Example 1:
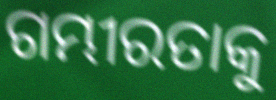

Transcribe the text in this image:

ଗମ୍ଭୀରତାକୁ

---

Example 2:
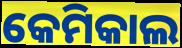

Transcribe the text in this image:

କେମିକାଲ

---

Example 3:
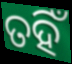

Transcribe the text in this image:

ତହିଁ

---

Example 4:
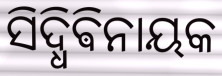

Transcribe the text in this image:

ସିଦ୍ଧିଵିନାୟକ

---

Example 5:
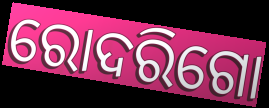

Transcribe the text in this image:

ରୋଦରିଗୋ